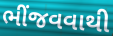
ભીંજવવાથી